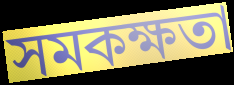
সমকক্ষতা